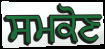
ਸਮਕੋਣ